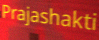
Prajashakti